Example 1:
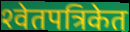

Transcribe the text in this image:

श्वेतपत्रिकेत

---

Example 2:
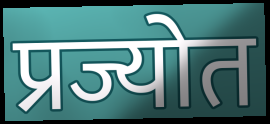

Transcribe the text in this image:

प्रज्योत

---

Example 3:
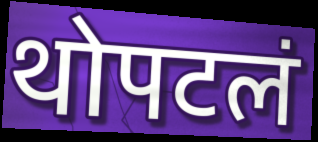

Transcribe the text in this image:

थोपटलं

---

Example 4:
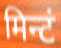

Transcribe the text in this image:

मिन्टं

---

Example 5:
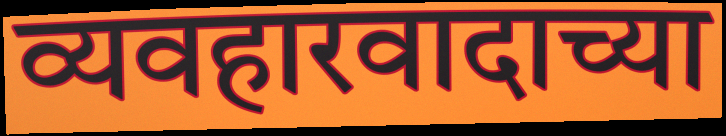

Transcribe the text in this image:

व्यवहारवादाच्या